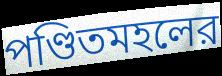
পণ্ডিতমহলের